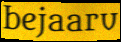
bejaaru